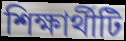
শিক্ষার্থীটি